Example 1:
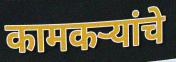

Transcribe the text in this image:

कामकऱ्यांचे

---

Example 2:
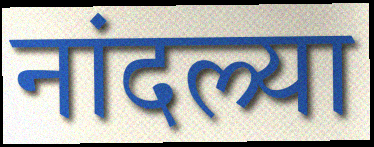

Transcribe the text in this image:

नांदल्या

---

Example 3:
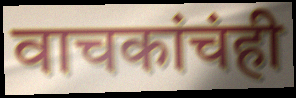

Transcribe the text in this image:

वाचकांचंही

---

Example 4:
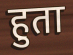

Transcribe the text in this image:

हुता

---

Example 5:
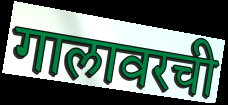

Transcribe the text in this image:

गालावरची